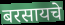
बरसायचे